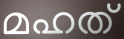
മഹത്